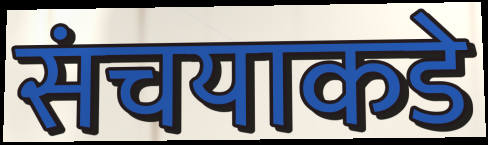
संचयाकडे